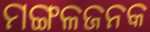
ମଙ୍ଗଳଜନକ